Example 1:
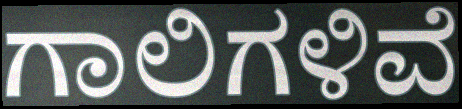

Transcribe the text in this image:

ಗಾಲಿಗಳಿವೆ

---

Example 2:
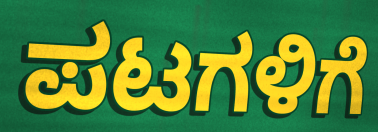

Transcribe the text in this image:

ಪಟಗಳಿಗೆ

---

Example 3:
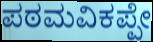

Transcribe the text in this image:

ಪಠಮವಿಕಪ್ಪೇ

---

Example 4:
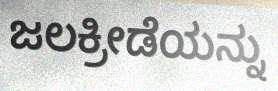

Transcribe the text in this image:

ಜಲಕ್ರೀಡೆಯನ್ನು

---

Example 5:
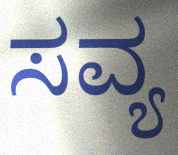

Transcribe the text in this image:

ಸವ್ಯ